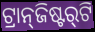
ଟ୍ରାନ୍‌ଜିଷ୍ଟର୍‌ଟି